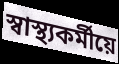
স্বাস্থ্যকৰ্মীয়ে